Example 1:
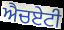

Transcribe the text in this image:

ਐਚਏਟੀ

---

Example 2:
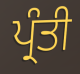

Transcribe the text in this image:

ਪ੍ਰੰਤੀ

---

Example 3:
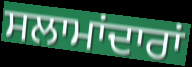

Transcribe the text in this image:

ਸਲਾਮਾਂਦਾਰਾਂ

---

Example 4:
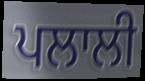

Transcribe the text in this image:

ਪਲਾਲੀ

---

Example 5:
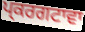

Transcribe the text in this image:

ਪ੍ਕਰਗਟਾਵਾ